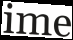
ime